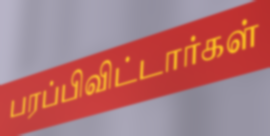
பரப்பிவிட்டார்கள்